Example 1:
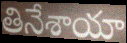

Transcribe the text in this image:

తినేశాయా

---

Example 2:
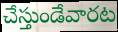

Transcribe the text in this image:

చేస్తుండేవారట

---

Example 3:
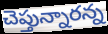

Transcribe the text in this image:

చెప్తున్నారన్న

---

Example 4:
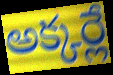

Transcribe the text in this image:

అక్కర్లే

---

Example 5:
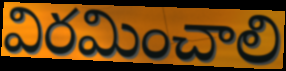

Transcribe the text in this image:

విరమించాలి